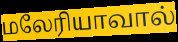
மலேரியாவால்